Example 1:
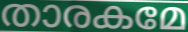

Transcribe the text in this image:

താരകമേ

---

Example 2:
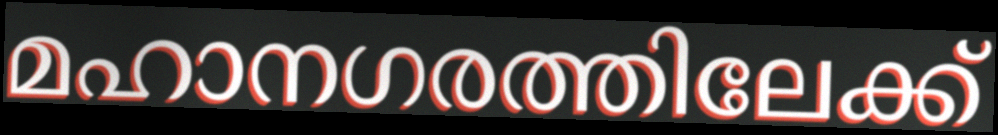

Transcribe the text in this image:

മഹാനഗരത്തിലേക്ക്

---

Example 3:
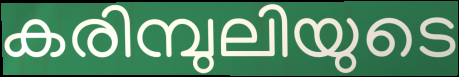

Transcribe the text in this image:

കരിമ്പുലിയുടെ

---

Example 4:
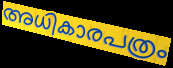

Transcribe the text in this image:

അധികാരപത്രം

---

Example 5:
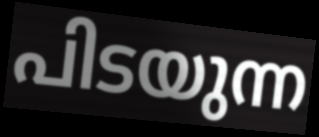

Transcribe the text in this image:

പിടയുന്ന